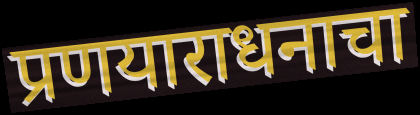
प्रणयाराधनाचा